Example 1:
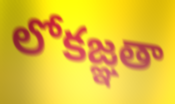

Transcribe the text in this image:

లోకజ్ఞతా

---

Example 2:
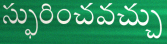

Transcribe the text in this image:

స్ఫురించవచ్చు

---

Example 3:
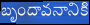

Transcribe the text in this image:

బృందావనానికి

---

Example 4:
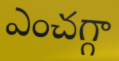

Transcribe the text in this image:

ఎంచగ్గా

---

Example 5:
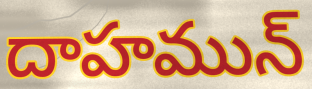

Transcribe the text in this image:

దాహమున్